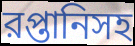
রপ্তানিসহ